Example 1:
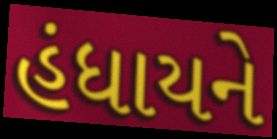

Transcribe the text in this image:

હંધાયને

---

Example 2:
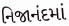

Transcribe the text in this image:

નિજાનંદમાં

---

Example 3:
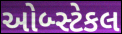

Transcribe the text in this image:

ઓબ્સ્ટેકલ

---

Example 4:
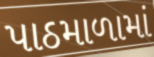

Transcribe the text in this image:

પાઠમાળામાં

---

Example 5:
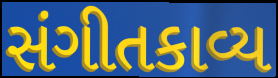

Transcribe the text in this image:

સંગીતકાવ્ય